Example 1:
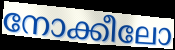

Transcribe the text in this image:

നോക്കീലോ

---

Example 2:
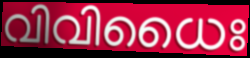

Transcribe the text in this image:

വിവിധൈഃ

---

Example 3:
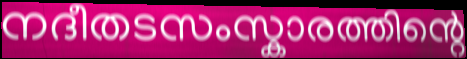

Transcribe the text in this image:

നദീതടസംസ്കാരത്തിന്റെ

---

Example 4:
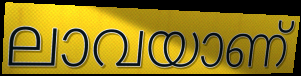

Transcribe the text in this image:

ലാവയാണ്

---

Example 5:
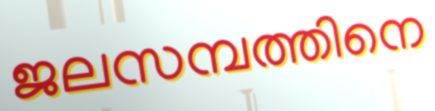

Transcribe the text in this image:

ജലസമ്പത്തിനെ